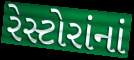
રેસ્ટોરાંનાં